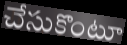
చేసుకొంటూ